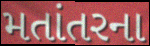
મતાંતરના